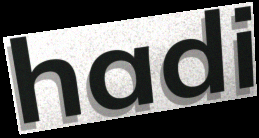
hadi